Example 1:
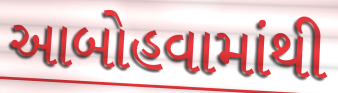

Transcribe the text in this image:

આબોહવામાંથી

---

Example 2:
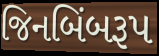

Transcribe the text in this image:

જિનબિંબરૂપ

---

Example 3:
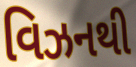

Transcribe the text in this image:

વિઝનથી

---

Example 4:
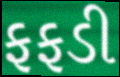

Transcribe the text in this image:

ફફડી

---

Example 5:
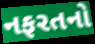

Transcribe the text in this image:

નફરતનો